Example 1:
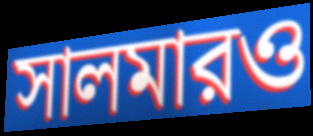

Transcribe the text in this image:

সালমারও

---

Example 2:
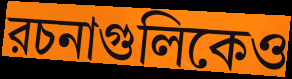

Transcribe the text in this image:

রচনাগুলিকেও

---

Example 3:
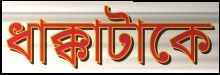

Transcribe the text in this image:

ধাক্কাটাকে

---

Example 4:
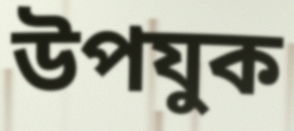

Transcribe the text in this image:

উপযুক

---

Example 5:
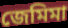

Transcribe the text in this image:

জেমিমা